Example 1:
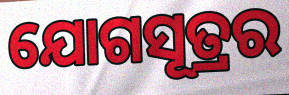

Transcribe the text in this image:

ଯୋଗସୂତ୍ରର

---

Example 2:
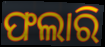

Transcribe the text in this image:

ଫଲାରି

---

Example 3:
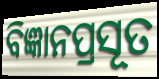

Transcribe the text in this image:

ବିଜ୍ଞାନପ୍ରସୂତ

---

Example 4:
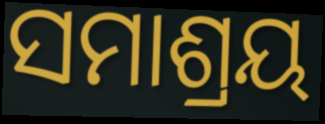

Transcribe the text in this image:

ସମାଶ୍ରୟ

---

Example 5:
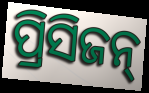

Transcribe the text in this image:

ପ୍ରିସିଜନ୍